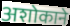
अशोकाने